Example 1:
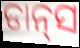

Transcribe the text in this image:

ଡାନ୍‍ସ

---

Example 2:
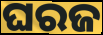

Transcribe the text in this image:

ଘରଜ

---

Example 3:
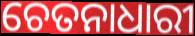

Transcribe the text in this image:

ଚେତନାଧାରୀ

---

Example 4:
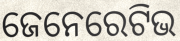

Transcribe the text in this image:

ଜେନେରେଟିଭ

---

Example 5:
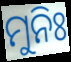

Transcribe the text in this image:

ମୁନିଃ